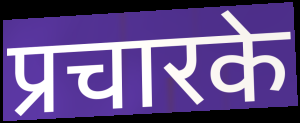
प्रचारके